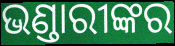
ଭଣ୍ଡାରୀଙ୍କର